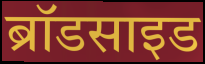
ब्रॉडसाइड